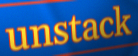
unstack